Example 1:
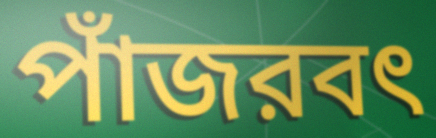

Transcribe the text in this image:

পাঁজরবৎ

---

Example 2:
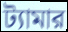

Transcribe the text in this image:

ট্যামার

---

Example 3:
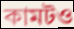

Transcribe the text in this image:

কামটও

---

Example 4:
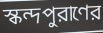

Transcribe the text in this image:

স্কন্দপুরাণের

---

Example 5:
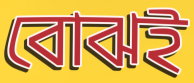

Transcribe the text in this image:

বোঝই